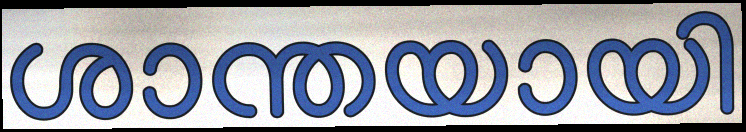
ശാന്തയായി